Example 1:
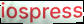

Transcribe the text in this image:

iospress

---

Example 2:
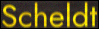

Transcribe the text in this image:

Scheldt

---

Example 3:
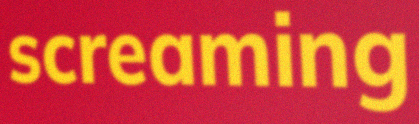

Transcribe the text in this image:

screaming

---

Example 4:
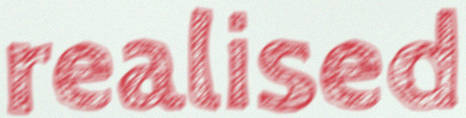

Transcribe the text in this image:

realised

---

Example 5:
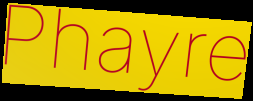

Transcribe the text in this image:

Phayre